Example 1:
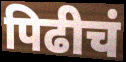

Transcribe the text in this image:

पिढीचं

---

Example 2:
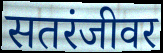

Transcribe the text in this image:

सतरंजीवर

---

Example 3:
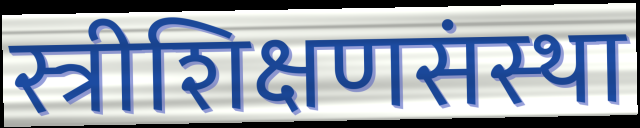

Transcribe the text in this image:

स्त्रीशिक्षणसंस्था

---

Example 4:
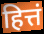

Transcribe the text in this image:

हित्तं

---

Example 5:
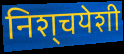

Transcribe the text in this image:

निश्चयेशी